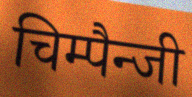
चिम्पैन्जी